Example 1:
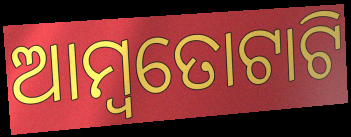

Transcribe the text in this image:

ଆମ୍ବତୋଟାଟି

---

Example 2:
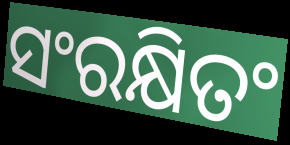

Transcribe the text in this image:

ସଂରକ୍ଷିତଂ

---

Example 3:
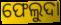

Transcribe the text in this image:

ଫେଲୁଦା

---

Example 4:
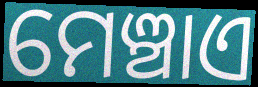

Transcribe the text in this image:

ମେଞ୍ଚାଏ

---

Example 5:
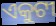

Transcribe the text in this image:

ଏକୁଟୀ